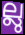
ല്ലു